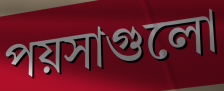
পয়সাগুলো